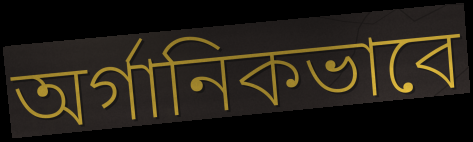
অর্গানিকভাবে